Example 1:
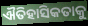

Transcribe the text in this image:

ଐତିହାସିକତାକୁ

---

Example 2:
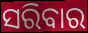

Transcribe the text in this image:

ସରିବାର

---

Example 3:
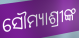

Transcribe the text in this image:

ସୌମ୍ୟାଶ୍ରୀଙ୍କ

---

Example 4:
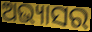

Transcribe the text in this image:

ଅଭ୍ୟାସର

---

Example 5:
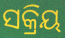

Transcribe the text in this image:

ସକ୍ରିୟ